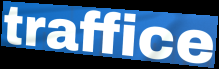
traffice